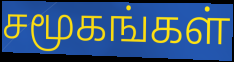
சமூகங்கள்